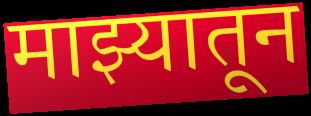
माझ्यातून